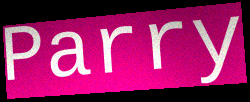
Parry